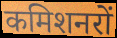
कमिशनरों